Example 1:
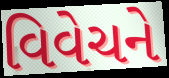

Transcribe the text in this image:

વિવેચને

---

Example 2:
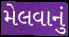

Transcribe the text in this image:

મેલવાનું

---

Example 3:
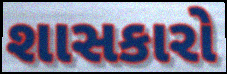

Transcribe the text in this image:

શાસકારો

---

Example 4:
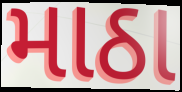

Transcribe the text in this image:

માઠા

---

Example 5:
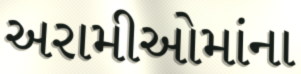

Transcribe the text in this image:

અરામીઓમાંના